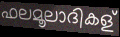
ഫലമൂലാദികള്